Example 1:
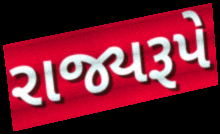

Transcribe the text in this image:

રાજ્યરૂપે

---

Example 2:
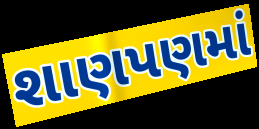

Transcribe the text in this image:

શાણપણમાં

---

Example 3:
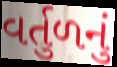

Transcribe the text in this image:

વર્તુળનું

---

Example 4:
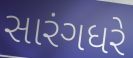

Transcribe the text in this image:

સારંગધરે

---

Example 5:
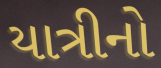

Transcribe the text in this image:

યાત્રીનો